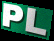
PL